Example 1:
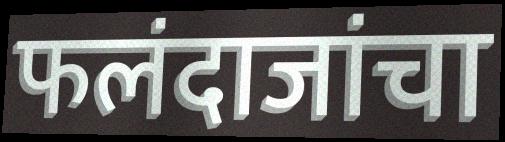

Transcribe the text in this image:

फलंदाजांचा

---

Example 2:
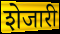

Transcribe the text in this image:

शेजारी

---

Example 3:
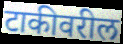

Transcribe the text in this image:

टाकीवरील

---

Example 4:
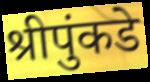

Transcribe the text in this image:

श्रीपुंकडे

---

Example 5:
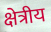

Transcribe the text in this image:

क्षेत्रीय